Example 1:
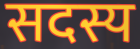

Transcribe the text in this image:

सदस्‍य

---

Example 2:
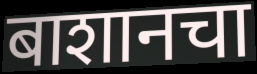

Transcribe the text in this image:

बाशानचा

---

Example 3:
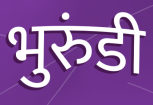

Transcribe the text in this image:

भुरुंडी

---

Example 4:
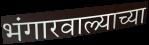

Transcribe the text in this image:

भंगारवाल्याच्या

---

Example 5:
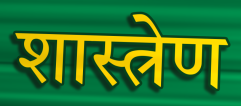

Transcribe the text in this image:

शास्त्रेण